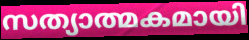
സത്യാത്മകമായി